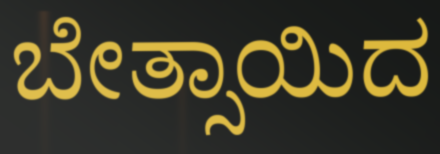
ಬೇತ್ಸಾಯಿದ